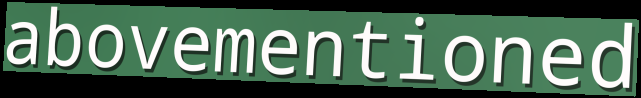
abovementioned